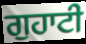
ਗੁਹਾਟੀ